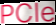
PCIe